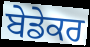
ਬੇਡੇਕਰ